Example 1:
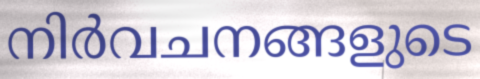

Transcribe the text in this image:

നിർവചനങ്ങളുടെ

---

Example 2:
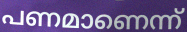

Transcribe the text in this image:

പണമാണെന്ന്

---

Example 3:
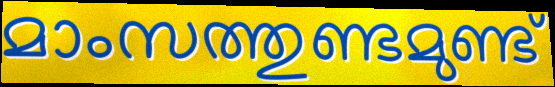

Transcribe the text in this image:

മാംസത്തുണ്ടമുണ്ട്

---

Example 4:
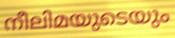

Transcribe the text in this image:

നീലിമയുടെയും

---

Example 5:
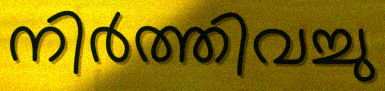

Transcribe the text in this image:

നിർത്തിവച്ചു